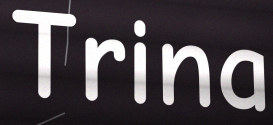
Trina